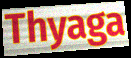
Thyaga